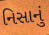
નિસાનું